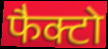
फैक्टो